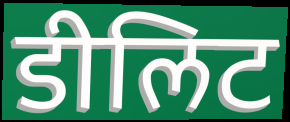
डीलिट